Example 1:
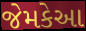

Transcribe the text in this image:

જેમકેઆ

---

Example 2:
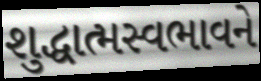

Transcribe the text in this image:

શુદ્ધાત્મસ્વભાવને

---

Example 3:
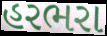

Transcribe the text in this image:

હરભરા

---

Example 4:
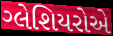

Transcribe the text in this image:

ગ્લેશિયરોએ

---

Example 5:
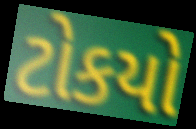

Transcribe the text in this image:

ટોકયો